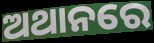
ଅଥାନରେ